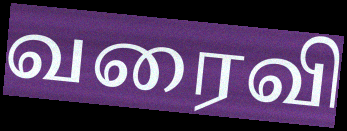
வரைவி